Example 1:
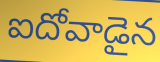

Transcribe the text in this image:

ఐదోవాడైన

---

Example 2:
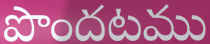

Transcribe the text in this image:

పొందటము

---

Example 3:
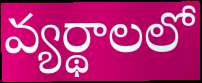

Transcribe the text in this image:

వ్యర్థాలలో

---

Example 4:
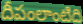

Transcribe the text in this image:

దీపంలాంటిది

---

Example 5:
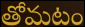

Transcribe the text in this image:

తోమటం